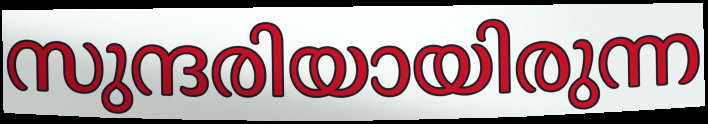
സുന്ദരിയായിരുന്ന